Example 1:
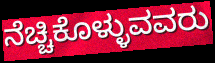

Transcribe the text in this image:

ನೆಚ್ಚಿಕೊಳ್ಳುವವರು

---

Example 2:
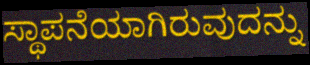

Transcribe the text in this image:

ಸ್ಥಾಪನೆಯಾಗಿರುವುದನ್ನು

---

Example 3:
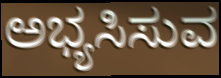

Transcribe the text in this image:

ಅಭ್ಯಸಿಸುವ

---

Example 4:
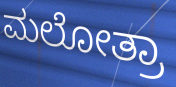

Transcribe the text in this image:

ಮಲೋತ್ರಾ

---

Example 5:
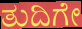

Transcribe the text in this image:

ತುದಿಗೇ